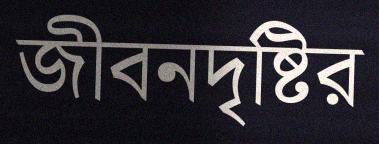
জীবনদৃষ্টির